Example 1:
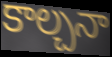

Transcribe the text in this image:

కాల్చనా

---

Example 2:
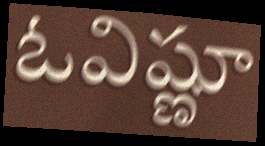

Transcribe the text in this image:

ఓవిష్ణూ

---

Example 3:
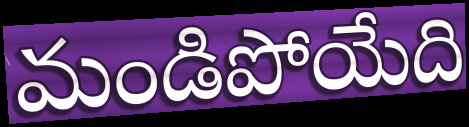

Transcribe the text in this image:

మండిపోయేది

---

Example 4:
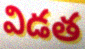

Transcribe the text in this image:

విడత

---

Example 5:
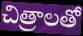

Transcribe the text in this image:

చిత్రాలతో